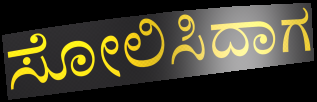
ಸೋಲಿಸಿದಾಗ